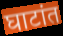
घाटांत